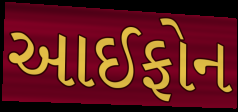
આઈફોન